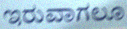
ಇರುವಾಗಲೂ